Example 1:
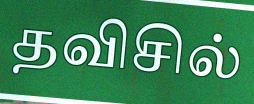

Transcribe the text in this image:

தவிசில்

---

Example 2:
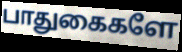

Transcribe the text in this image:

பாதுகைகளே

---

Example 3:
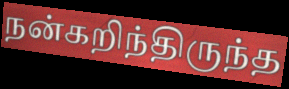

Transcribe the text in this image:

நன்கறிந்திருந்த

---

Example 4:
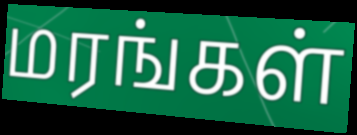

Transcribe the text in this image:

மரங்கள்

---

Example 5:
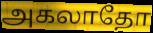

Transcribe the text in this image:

அகலாதோ